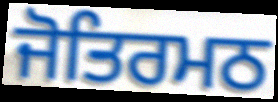
ਜੋਤਿਰਮਠ